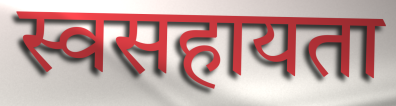
स्वसहायता